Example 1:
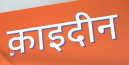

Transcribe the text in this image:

क़ाइदीन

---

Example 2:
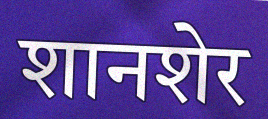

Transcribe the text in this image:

शानशेर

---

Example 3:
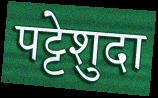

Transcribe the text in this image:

पट्टेशुदा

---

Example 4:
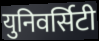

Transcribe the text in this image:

युनिवर्सिटी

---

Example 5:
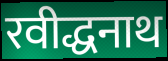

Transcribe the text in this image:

रवीद्धनाथ